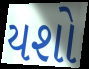
યશો